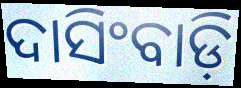
ଦାସିଂବାଡ଼ି